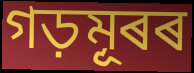
গড়মূৰৰ